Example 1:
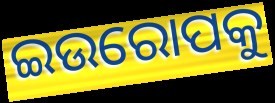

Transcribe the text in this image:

ଇଉରୋପକୁ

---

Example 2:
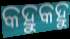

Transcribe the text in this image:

କହୁକହୁ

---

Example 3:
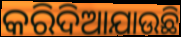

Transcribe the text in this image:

କରିଦିଆଯାଉଛି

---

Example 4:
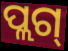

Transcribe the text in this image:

ପ୍ଲଗ୍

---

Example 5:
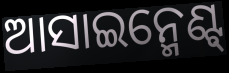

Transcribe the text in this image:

ଆସାଇନ୍ମେଣ୍ଟ୍